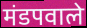
मंडपवाले